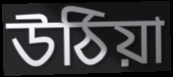
উঠিয়া